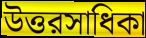
উত্তরসাধিকা